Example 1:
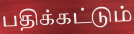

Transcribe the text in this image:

பதிக்கட்டும்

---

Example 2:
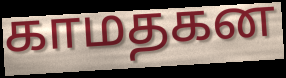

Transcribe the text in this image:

காமதகன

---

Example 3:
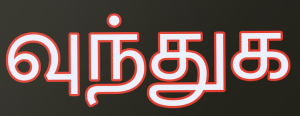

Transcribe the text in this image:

வுந்துக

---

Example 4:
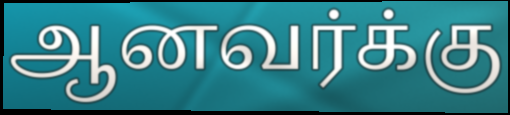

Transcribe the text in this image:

ஆனவர்க்கு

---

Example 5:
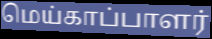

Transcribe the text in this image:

மெய்காப்பாளர்